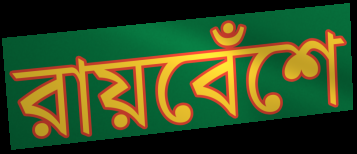
রায়বেঁশে